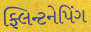
ફ્લિન્ટનેપિંગ